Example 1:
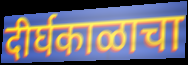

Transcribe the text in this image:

दीर्घकाळाचा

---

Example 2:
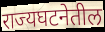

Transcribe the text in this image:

राज्यघटनेतील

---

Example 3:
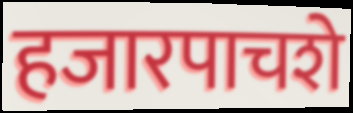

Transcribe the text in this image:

हजारपाचशे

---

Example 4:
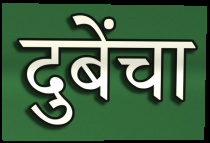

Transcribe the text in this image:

दुबेंचा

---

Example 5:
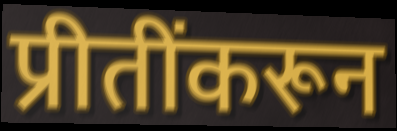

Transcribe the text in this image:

प्रीतींकरून